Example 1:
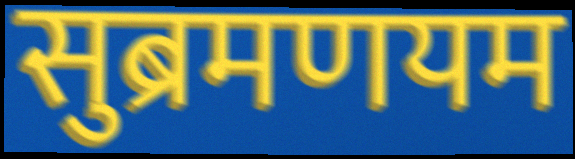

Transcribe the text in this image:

सुब्रमणयम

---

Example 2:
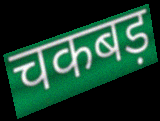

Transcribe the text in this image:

चकबड़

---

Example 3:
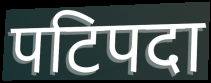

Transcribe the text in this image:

पटिपदा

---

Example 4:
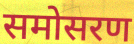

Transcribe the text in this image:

समोसरण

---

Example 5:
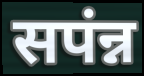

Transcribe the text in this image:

सपंन्न